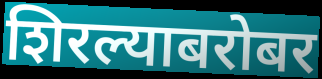
शिरल्याबरोबर